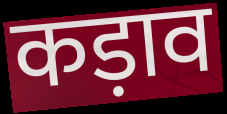
कड़ाव